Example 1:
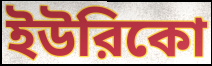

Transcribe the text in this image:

ইউরিকো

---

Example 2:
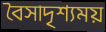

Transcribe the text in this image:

বৈসাদৃশ্যময়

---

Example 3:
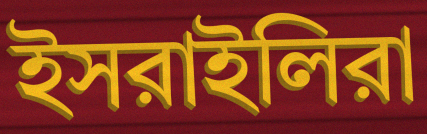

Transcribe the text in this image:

ইসরাইলিরা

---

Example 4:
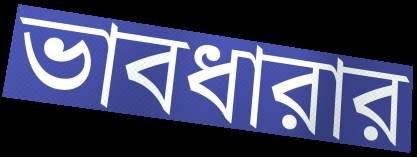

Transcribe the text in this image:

ভাবধারার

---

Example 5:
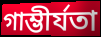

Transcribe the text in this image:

গাম্ভীর্যতা